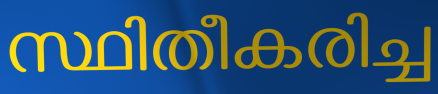
സ്ഥിതീകരിച്ച